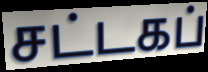
சட்டகப்